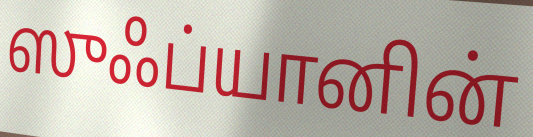
ஸுஃப்யானின்